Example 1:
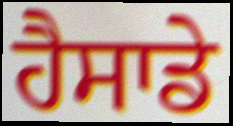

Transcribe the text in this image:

ਹੈਸਾਡੇ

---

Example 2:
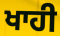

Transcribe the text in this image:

ਖਾਹੀ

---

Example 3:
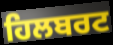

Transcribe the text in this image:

ਹਿਲਬਰਟ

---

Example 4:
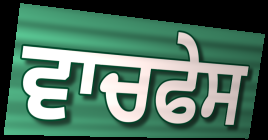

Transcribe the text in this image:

ਵਾਚਫੇਸ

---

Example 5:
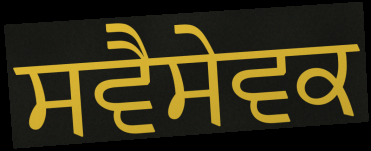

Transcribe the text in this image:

ਸਵੈਸੇਵਕ